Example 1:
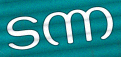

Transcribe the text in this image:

ടന്ന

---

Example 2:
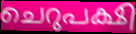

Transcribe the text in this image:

ചെറുപക്ഷി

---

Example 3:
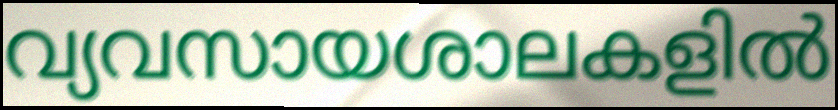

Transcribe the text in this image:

വ്യവസായശാലകളിൽ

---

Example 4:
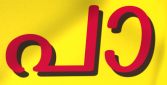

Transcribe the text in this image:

പാ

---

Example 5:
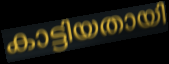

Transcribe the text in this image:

കാട്ടിയതായി